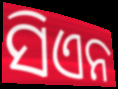
ସିଏନ